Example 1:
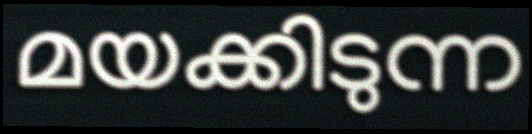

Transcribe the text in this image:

മയക്കിടുന്ന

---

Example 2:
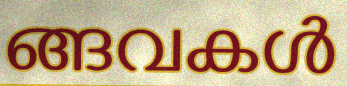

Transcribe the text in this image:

ങ്ങവകൾ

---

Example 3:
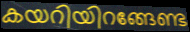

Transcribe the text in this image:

കയറിയിറങ്ങേണ്ട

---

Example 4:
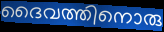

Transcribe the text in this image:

ദൈവത്തിനൊരു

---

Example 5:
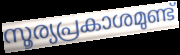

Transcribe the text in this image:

സൂര്യപ്രകാശമുണ്ട്